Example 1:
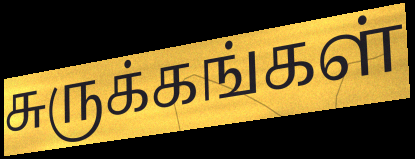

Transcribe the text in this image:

சுருக்கங்கள்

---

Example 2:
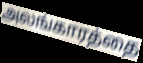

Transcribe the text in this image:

அலங்காரத்தை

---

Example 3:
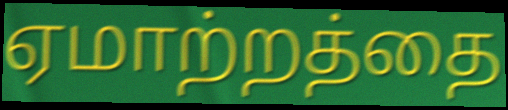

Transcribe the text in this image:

ஏமாற்றத்தை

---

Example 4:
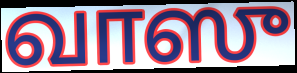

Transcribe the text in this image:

வாஸு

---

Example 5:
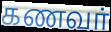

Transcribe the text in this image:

கணவர்